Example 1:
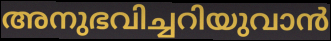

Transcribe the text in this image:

അനുഭവിച്ചറിയുവാൻ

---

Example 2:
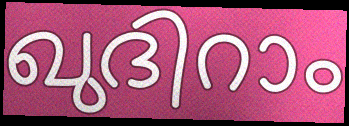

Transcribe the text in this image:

ഖുദിറാം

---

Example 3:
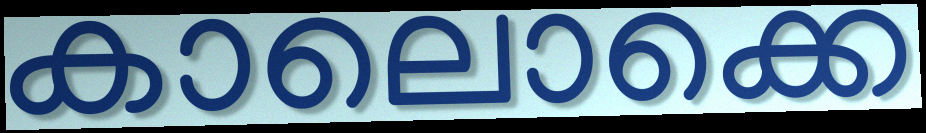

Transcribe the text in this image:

കാലൊക്കെ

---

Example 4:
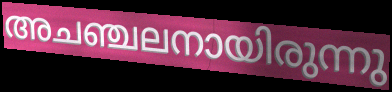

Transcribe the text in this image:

അചഞ്ചലനായിരുന്നു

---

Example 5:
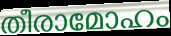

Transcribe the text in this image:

തീരാമോഹം